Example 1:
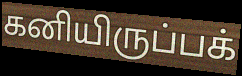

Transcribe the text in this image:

கனியிருப்பக்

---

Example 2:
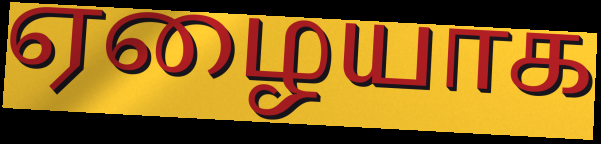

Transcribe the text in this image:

ஏழையாக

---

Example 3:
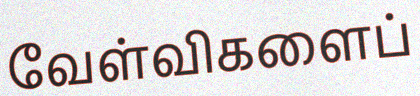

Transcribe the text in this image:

வேள்விகளைப்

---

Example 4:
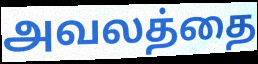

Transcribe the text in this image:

அவலத்தை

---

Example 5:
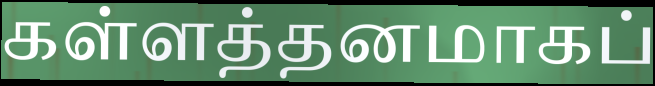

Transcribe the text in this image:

கள்ளத்தனமாகப்